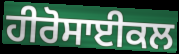
ਹੀਰੋਸਾਈਕਲ